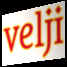
velji